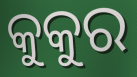
କୁକୁର